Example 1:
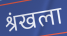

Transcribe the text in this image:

श्रंखला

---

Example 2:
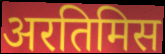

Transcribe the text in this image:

अरतिमिस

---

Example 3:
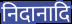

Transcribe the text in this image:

निदानादि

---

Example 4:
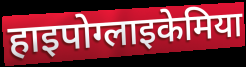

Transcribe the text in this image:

हाइपोग्लाइकेमिया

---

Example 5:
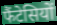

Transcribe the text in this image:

फैंटेसियों